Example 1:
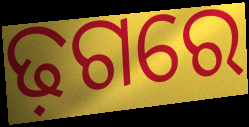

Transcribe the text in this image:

ଢ଼ଗରେ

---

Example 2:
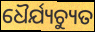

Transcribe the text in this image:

ଧୈର୍ଯ୍ୟଚ୍ୟୁତ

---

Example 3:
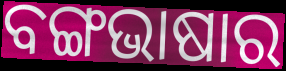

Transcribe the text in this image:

ବଙ୍ଗଭାଷାର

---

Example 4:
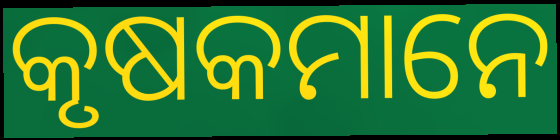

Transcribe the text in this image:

କୃଷକମାନେ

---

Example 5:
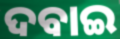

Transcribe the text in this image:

ଦବାଇ